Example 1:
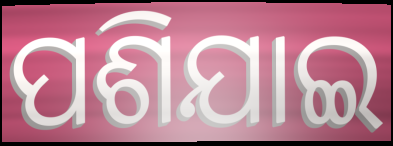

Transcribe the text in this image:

ପଶିଯାଇ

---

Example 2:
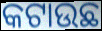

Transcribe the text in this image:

କଟାଉଛ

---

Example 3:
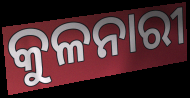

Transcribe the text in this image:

କୁଳନାରୀ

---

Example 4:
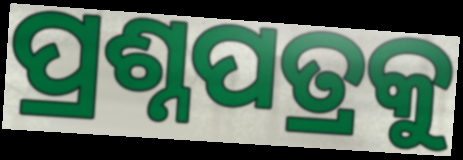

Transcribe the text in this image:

ପ୍ରଶ୍ନପତ୍ରକୁ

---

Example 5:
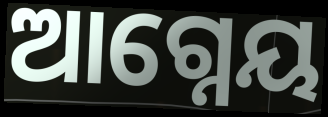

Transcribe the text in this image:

ଆଗ୍ନେୟ